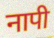
नापी